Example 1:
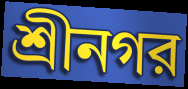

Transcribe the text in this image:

শ্রীনগর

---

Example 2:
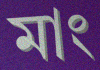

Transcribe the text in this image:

মাং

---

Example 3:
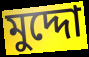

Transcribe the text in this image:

মুদ্দো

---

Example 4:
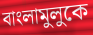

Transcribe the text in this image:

বাংলামুলুকে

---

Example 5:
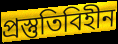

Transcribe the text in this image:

প্রস্তুতিবিহীন